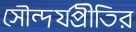
সৌন্দর্যপ্রীতির